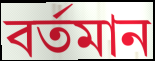
বর্তমান